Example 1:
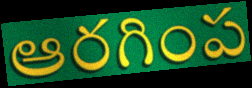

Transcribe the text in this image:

ఆరగింప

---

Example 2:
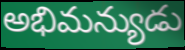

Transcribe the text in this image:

అభిమన్యుడు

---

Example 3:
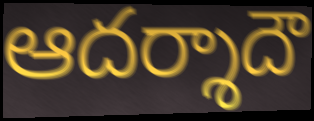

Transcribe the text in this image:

ఆదర్శాదౌ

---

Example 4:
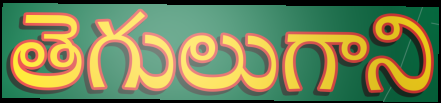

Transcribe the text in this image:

తెగులుగాని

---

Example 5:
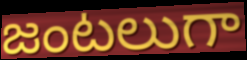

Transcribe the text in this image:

జంటలుగా